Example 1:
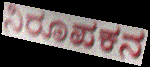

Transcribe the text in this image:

ನಿರೂಪಕನ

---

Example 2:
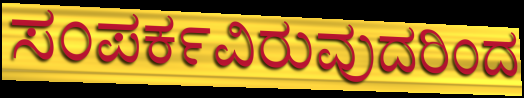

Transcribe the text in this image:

ಸಂಪರ್ಕವಿರುವುದರಿಂದ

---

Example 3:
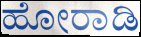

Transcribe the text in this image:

ಹೋರಾಡಿ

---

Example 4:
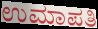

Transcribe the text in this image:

ಉಮಾಪತಿ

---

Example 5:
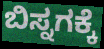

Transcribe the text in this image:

ಬಿಸ್ನಗಕ್ಕೆ